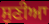
ਸੁਣੀਆ